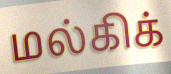
மல்கிக்